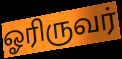
ஓரிருவர்